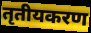
तृतीयकरण